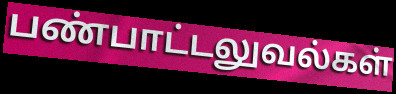
பண்பாட்டலுவல்கள்